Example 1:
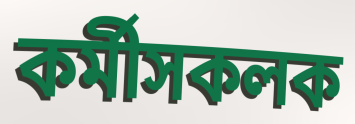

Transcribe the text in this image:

কৰ্মীসকলক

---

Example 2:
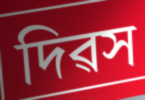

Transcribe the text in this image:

দিৱস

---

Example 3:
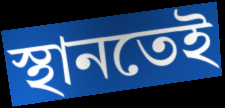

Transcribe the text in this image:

স্থানতেই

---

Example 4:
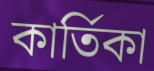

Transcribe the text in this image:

কাৰ্তিকা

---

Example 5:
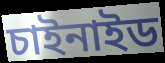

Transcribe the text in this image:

চাইনাইড